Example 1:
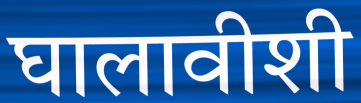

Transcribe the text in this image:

घालावीशी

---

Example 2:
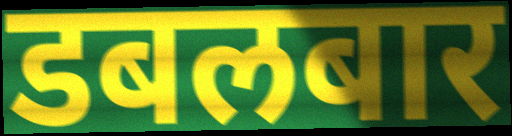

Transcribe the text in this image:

डबलबार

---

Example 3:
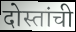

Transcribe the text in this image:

दोस्तांची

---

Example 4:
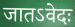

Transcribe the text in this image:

जातऽवेदः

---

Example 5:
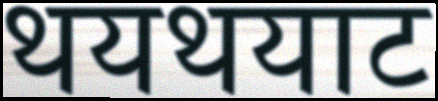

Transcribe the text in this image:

थयथयाट